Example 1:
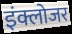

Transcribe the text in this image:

इंक्लोजर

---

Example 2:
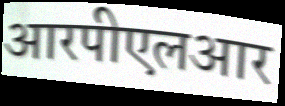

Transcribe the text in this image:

आरपीएलआर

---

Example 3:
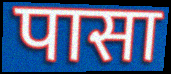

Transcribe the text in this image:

पासा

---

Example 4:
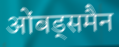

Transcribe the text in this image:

ओंबड्समैन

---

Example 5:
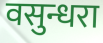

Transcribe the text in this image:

वसुन्धरा